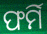
ଫର୍ମି